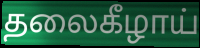
தலைகீழாய்